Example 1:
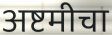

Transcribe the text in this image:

अष्टमीचा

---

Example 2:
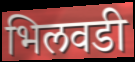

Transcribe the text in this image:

भिलवडी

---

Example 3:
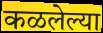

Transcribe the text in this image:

कळलेल्या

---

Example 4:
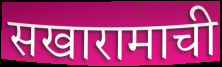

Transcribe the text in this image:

सखारामाची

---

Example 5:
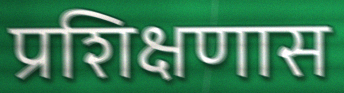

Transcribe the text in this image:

प्रशिक्षणास